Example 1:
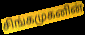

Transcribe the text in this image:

சிங்கமுகனின்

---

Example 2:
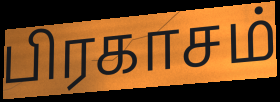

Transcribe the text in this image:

பிரகாசம்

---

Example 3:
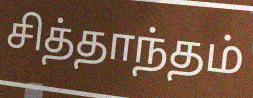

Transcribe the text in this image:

சித்தாந்தம்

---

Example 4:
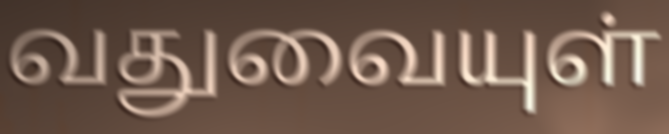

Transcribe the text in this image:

வதுவையுள்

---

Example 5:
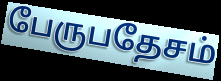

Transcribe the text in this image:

பேருபதேசம்